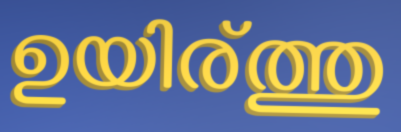
ഉയിര്ത്തു